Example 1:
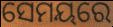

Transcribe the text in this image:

ସେମୟରେ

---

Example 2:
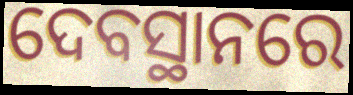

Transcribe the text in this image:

ଦେବସ୍ଥାନରେ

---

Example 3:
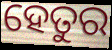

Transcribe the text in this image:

ହେତୁର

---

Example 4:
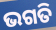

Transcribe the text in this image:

ଭଗତି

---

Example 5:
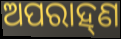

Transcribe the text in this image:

ଅପରାହ୍‌ଣ